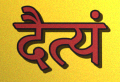
दैत्यं